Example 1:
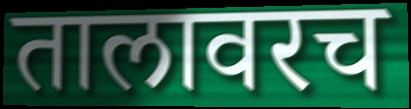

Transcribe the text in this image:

तालावरच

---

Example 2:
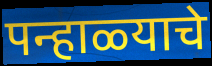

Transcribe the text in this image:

पन्हाळ्याचे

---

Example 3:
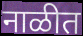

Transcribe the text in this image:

नाळीत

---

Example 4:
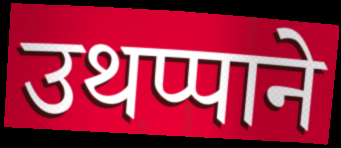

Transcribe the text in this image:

उथप्पाने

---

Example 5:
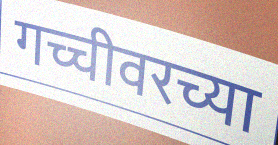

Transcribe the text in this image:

गच्चीवरच्या